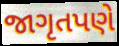
જાગૃતપણે